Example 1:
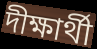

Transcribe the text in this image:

দীক্ষার্থী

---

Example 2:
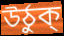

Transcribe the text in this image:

উঠুক্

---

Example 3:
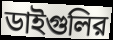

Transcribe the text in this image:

ডাইগুলির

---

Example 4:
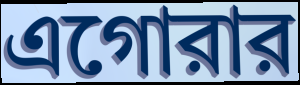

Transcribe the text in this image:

এগোরার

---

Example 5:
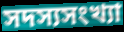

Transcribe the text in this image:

সদস্যসংখ্যা